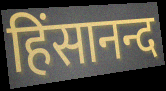
हिंसानन्द